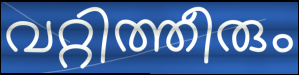
വറ്റിത്തീരും